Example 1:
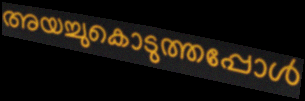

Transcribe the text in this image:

അയച്ചുകൊടുത്തപ്പോൾ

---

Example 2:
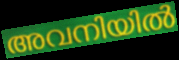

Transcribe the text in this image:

അവനിയിൽ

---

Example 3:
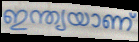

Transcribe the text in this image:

ഇന്ത്യയാണ്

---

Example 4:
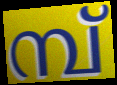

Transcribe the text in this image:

മ്പ്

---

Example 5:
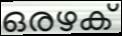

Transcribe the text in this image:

ഒരഴക്